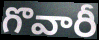
గొవారీ